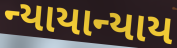
ન્યાયાન્યાય